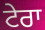
ਟੇਰਾ